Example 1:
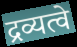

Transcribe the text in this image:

द्रव्यत्वे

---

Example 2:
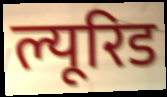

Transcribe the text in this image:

ल्यूरिड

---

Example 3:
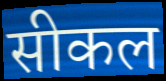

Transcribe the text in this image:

सीकल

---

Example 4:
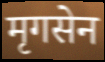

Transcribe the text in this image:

मृगसेन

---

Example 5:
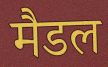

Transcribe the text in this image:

मैडल